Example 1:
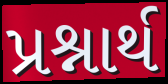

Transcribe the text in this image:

પ્રશ્નાર્થ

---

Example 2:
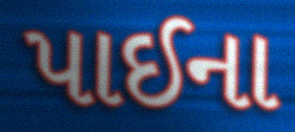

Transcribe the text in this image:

પાઈના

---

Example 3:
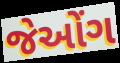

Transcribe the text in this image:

જેઓંગ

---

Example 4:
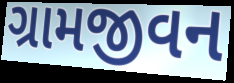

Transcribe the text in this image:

ગ્રામજીવન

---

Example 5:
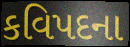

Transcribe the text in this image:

કવિપદના